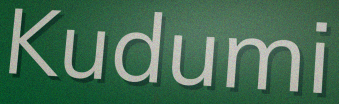
Kudumi